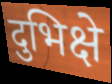
दुभिक्षे